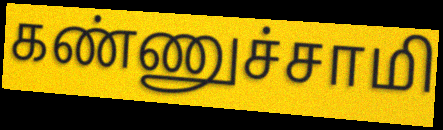
கண்ணுச்சாமி